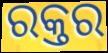
ରକ୍ତର